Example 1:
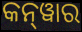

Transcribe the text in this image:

କନ୍‍ୱାର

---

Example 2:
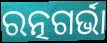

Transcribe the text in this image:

ରତ୍ନଗର୍ଭା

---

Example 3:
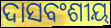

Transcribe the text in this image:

ଦାସବଂଶୀୟ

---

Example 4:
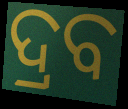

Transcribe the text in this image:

ଦ୍ରବ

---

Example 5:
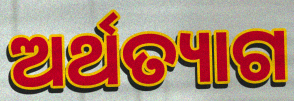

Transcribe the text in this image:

ଅର୍ଥତ୍ୟାଗ